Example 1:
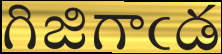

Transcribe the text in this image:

గిజిగాఁడ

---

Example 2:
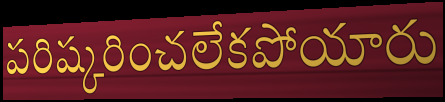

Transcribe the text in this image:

పరిష్కరించలేకపోయారు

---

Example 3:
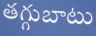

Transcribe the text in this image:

తగ్గుబాటు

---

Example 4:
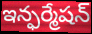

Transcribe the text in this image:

ఇన్ఫర్మేషన్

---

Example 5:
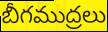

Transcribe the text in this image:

బీగముద్రలు